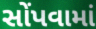
સોંપવામાં